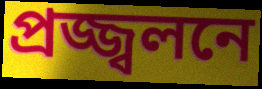
প্রজ্জ্বলনে